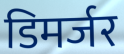
डिमर्जर